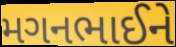
મગનભાઈને